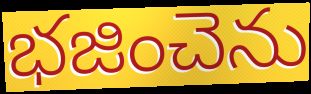
భజించెను